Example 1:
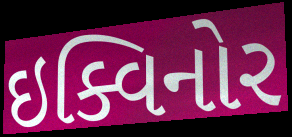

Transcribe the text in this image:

ઇક્વિનોર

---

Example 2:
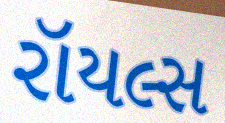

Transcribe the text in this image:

રૉયલ્સ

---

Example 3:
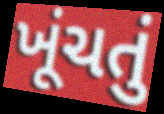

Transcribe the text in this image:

ખૂંચતું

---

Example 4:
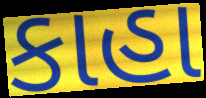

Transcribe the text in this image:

કાહા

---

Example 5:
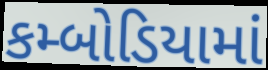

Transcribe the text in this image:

કમ્બોડિયામાં